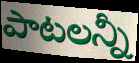
పాటలన్నీ